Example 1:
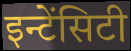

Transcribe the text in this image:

इन्टेंसिटी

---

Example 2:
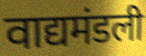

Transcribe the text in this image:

वाद्यमंडली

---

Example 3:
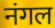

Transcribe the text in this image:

नंगल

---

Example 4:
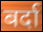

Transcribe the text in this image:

बर्दा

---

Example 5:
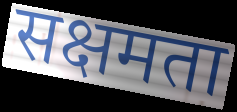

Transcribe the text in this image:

सक्षमता